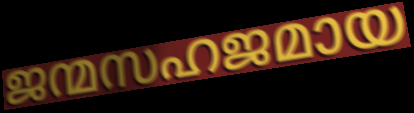
ജന്മസഹജമായ